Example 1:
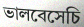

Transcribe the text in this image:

ভালবেসেচি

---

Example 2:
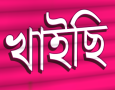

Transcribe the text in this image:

খাইছি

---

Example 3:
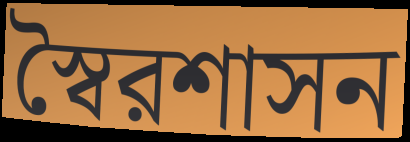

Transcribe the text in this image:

স্বৈরশাসন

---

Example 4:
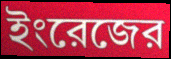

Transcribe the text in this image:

ইংরেজের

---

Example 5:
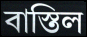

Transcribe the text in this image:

বাস্তিল